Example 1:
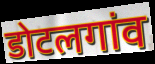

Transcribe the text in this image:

डोटलगांव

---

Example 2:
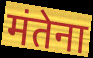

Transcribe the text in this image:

मंतेना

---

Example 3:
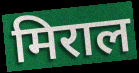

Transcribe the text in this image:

मिराल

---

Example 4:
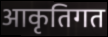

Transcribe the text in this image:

आकृतिगत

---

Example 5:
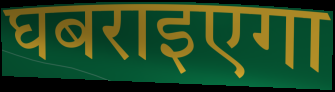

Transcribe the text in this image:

घबराइएगा